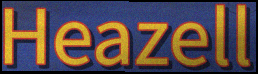
Heazell